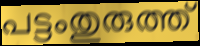
പട്ടംതുരുത്ത്